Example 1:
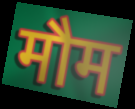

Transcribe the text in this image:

मौम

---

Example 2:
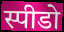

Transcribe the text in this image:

स्पीडो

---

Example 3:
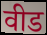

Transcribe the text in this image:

वीड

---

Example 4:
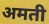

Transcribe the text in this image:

अमती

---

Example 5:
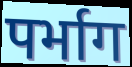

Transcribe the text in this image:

पर्भाग